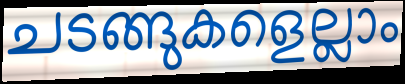
ചടങ്ങുകളെല്ലാം